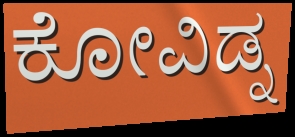
ಕೋವಿಡ್ನ